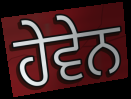
ਹੇਵੇਨ